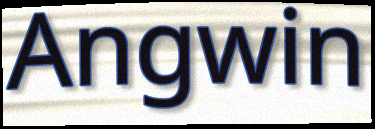
Angwin